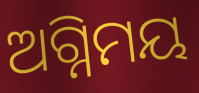
ଅଗ୍ନିମୟ